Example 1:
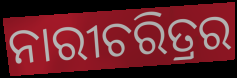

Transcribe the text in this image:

ନାରୀଚରିତ୍ରର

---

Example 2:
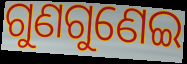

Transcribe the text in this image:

ଗୁଣଗୁଣେଇ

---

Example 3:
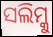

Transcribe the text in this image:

ସଲିମ୍କୁ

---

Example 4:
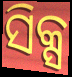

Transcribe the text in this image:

ସିକ୍ସ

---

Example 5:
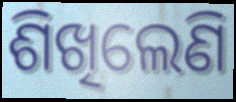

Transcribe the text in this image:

ଶିଖିଲେଣି